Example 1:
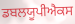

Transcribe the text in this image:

ਡਬਲਯੂਪੀਐਕਸ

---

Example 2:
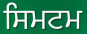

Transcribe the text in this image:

ਸਿਮਟਮ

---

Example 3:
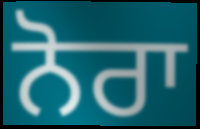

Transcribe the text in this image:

ਨੋਰਾ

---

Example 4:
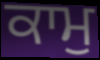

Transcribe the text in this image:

ਕਾਮੁ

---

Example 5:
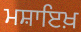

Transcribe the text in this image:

ਮਸ਼ਾਇਖ਼